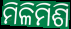
ମିଳିମିଶି